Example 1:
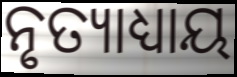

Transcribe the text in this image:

ନୃତ୍ୟାଧ୍ୟାୟ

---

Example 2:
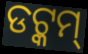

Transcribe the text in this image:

ଡଟ୍କମ୍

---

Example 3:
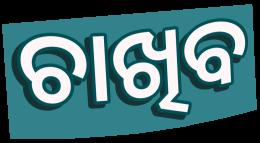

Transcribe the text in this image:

ଚାଖିବ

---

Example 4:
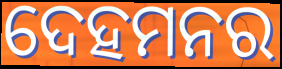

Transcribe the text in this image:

ଦେହମନର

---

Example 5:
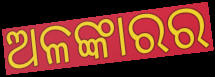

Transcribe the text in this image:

ଅଳଙ୍କାରର